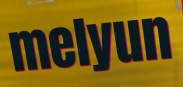
melyun